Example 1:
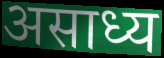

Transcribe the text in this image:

असाध्य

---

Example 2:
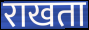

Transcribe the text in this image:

राखता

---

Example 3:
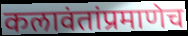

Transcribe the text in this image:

कलावंतांप्रमाणेच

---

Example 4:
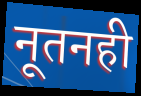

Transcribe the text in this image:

नूतनही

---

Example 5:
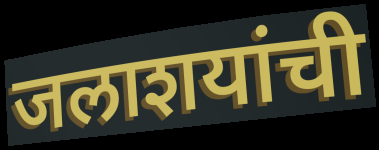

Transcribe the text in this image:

जलाशयांची